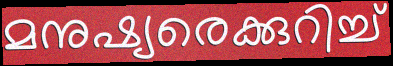
മനുഷ്യരെക്കുറിച്ച്